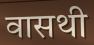
वासथी